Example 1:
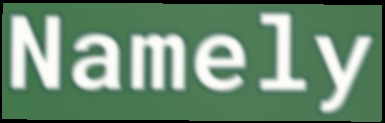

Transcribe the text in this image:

Namely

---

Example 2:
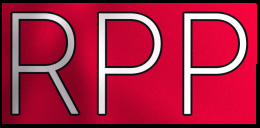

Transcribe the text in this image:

RPP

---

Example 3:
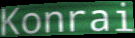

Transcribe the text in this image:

Konrai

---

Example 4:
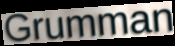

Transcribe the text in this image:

Grumman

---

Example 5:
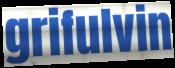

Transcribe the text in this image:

grifulvin